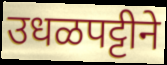
उधळपट्टीने